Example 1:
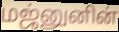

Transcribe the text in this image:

மஜ்னுனின்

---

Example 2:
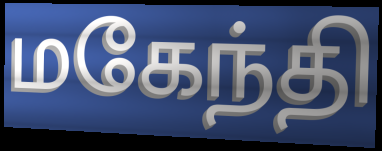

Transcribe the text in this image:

மகேந்தி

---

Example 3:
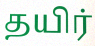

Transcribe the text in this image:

தயிர்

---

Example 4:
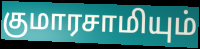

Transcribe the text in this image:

குமாரசாமியும்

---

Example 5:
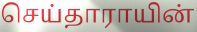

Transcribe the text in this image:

செய்தாராயின்